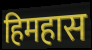
हिमहास